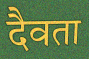
दैवता